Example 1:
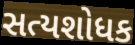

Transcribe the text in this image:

સત્યશોધક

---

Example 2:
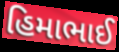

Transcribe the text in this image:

હિમાભાઈ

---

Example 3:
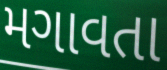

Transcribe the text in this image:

મગાવતા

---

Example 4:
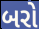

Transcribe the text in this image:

બરો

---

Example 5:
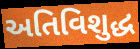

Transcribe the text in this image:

અતિવિશુદ્ધ